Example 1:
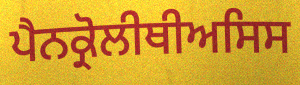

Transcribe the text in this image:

ਪੈਨਕ੍ਰੋਲੀਥੀਅਸਿਸ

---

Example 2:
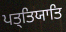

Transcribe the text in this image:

ਪਤ੍ਤਿਯਾਤਿ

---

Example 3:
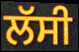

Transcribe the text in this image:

ਲੱਸੀ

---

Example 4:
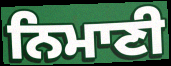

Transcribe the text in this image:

ਨਿਮਾਣੀ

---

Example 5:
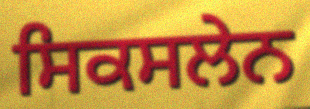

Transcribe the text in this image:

ਸਿਕਸਲੇਨ